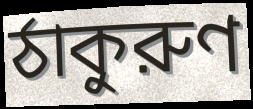
ঠাকুৰুণ